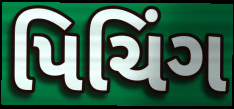
પિચિંગ